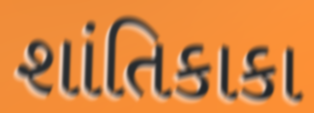
શાંતિકાકા